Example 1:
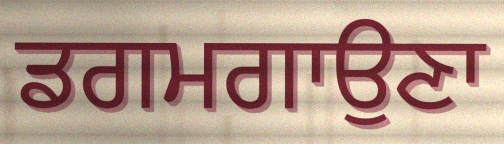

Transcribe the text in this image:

ਡਗਮਗਾਉਣਾ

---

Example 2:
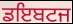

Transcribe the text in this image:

ਡਇਬਟਜ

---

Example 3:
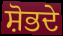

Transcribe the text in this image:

ਸ਼ੋਭਦੇ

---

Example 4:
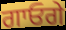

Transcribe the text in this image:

ਗਾਓਗੇ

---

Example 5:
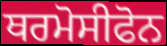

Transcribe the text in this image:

ਥਰਮੋਸੀਫੋਨ